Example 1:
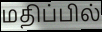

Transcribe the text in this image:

மதிப்பில்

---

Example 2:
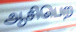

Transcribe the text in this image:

ஆசிபெற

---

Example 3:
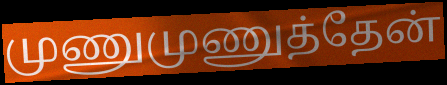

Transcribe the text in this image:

முணுமுணுத்தேன்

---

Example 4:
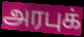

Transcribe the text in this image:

அரபுக்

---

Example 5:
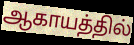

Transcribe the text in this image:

ஆகாயத்தில்